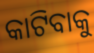
କାଟିବାକୁ